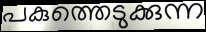
പകുത്തെടുക്കുന്ന